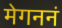
मेगननं